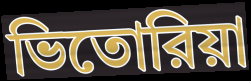
ভিতোরিয়া